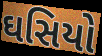
ઘસિયો